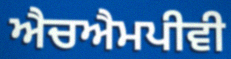
ਐਚਐਮਪੀਵੀ